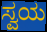
ಸ್ವಯ